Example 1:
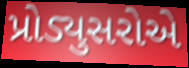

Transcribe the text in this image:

પ્રોડ્યુસરોએ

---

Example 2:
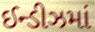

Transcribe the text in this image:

ઈન્ડીઝમાં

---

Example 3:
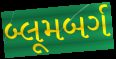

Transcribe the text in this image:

બ્લૂમબર્ગ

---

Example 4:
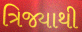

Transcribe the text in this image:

ત્રિજ્યાથી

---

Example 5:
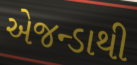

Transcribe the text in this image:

એજન્ડાથી